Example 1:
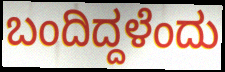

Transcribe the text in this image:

ಬಂದಿದ್ದಳೆಂದು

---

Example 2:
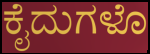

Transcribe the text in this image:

ಕೈದುಗಳೊ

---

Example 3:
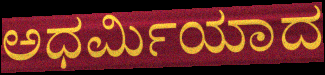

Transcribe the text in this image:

ಅಧರ್ಮಿಯಾದ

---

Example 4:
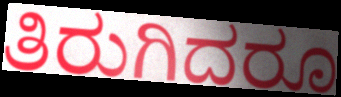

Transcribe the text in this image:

ತಿರುಗಿದರೂ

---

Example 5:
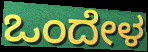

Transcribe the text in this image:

ಒಂದೇಳ